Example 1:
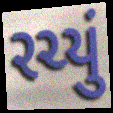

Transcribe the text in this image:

રચ્યું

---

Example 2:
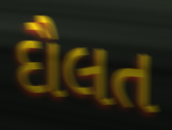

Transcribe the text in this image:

દૌલત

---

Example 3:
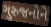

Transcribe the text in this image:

ગુરુજનોને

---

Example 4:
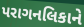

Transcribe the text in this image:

પરાગનલિકાને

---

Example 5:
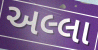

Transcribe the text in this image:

અલ્લા